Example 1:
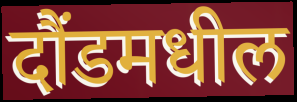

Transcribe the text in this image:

दौंडमधील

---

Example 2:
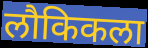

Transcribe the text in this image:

लौकिकला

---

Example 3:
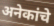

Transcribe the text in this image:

अनेकांचे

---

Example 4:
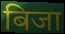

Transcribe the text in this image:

बिजा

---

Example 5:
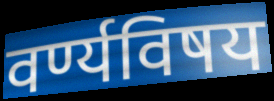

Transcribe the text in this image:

वर्ण्यविषय